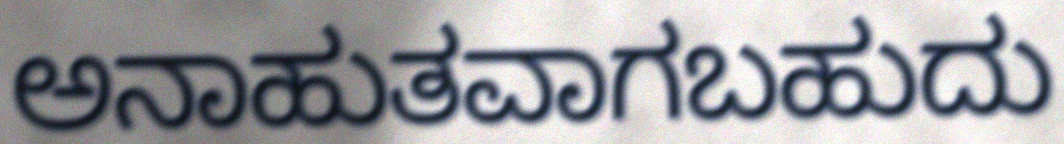
ಅನಾಹುತವಾಗಬಹುದು